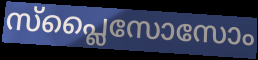
സ്പ്ലൈസോസോം